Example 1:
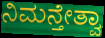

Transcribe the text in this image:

ನಿಮನ್ತೇತ್ವಾ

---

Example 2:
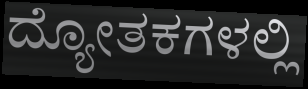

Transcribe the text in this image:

ದ್ಯೋತಕಗಳಲ್ಲಿ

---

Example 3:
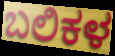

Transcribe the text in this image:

ಬಲಿಕಳ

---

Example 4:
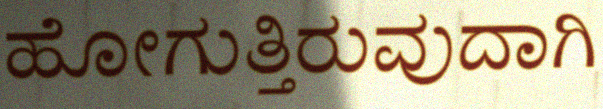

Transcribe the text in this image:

ಹೋಗುತ್ತಿರುವುದಾಗಿ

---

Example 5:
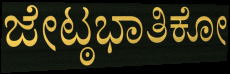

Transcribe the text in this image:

ಜೇಟ್ಠಭಾತಿಕೋ